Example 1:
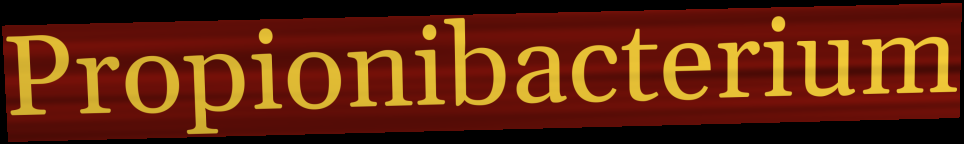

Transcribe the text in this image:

Propionibacterium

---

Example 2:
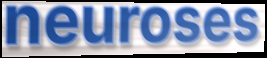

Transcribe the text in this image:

neuroses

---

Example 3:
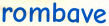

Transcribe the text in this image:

rombave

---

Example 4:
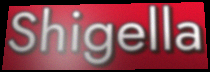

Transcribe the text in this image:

Shigella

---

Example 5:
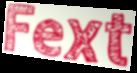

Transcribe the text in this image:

Fext